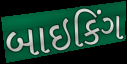
બાઇકિંગ